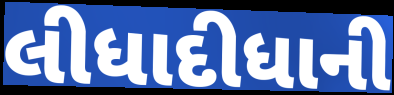
લીધાદીધાની